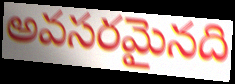
అవసరమైనది